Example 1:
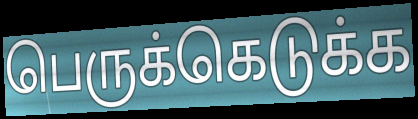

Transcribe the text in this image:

பெருக்கெடுக்க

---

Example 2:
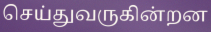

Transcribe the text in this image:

செய்துவருகின்றன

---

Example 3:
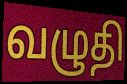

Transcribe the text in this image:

வழுதி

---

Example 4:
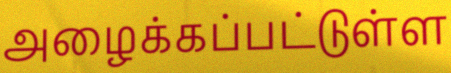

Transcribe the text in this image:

அழைக்கப்பட்டுள்ள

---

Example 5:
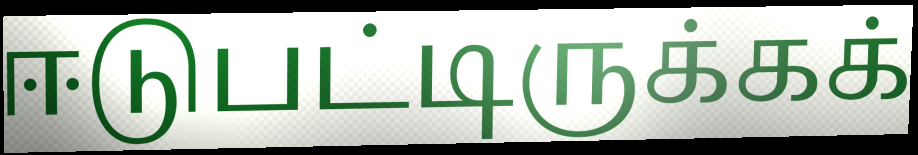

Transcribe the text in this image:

ஈடுபட்டிருக்கக்